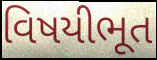
વિષયીભૂત